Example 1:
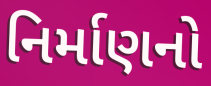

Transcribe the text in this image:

નિર્માણનો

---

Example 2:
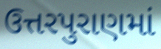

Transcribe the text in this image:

ઉત્તરપુરાણમાં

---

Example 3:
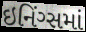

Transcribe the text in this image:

ઇનિંગ્સમાં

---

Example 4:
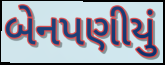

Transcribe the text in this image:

બેનપણીયું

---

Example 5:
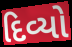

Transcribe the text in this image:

દિવ્યો